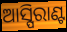
ଆସ୍ପିରାଣ୍ଟ